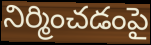
నిర్మించడంపై